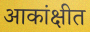
आकांक्षीत